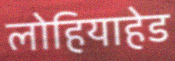
लोहियाहेड